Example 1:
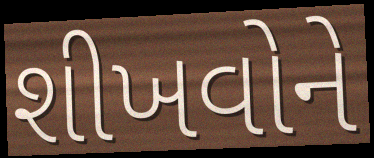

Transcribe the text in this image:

શીખવોને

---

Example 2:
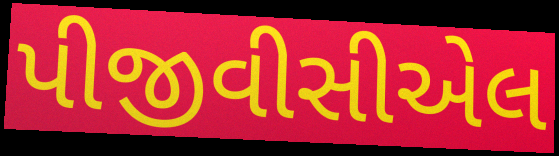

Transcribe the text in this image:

પીજીવીસીએલ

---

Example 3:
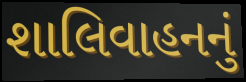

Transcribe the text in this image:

શાલિવાહનનું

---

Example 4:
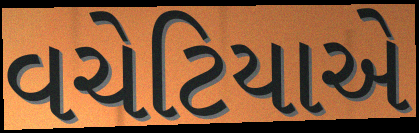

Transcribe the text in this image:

વચેટિયાએ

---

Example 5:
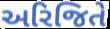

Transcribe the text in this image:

અરિજિતે